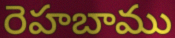
రెహబాము